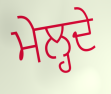
ਮੇਲ੍ਹਦੇ